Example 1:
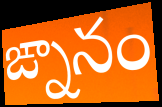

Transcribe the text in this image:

ఙ్నానం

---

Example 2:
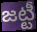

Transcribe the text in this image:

జట్టీ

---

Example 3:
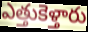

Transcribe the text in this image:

ఎత్తుకెళ్తారు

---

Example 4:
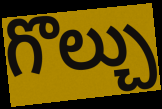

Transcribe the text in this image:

గొల్చు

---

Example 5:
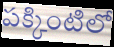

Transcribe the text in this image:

పక్కింటిలో